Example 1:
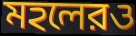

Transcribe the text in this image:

মহলেরও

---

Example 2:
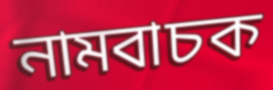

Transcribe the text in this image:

নামবাচক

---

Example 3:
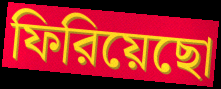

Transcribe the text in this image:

ফিরিয়েছো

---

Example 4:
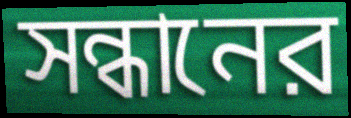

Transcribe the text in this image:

সন্ধানের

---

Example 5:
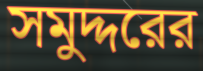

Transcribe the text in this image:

সমুদ্দরের